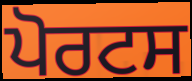
ਪੋਰਟਸ